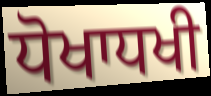
ਧੋਖਾਧਖੀ